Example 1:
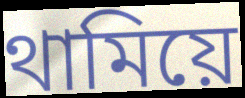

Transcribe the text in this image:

থামিয়ে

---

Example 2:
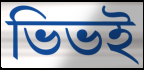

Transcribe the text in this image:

ভিভই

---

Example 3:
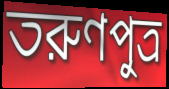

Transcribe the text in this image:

তরুণপুত্র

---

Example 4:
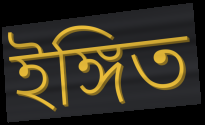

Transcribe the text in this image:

ইঙ্গিত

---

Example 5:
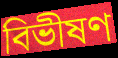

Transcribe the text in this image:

বিভীষণ